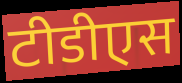
टीडीएस